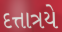
દત્તાત્રયે